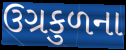
ઉગ્રકુળના